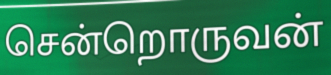
சென்றொருவன்